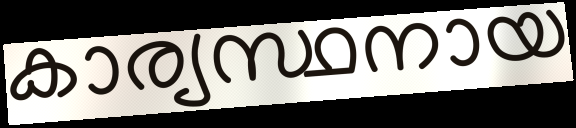
കാര്യസ്ഥനായ